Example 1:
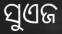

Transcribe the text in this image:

ସୁଏଜ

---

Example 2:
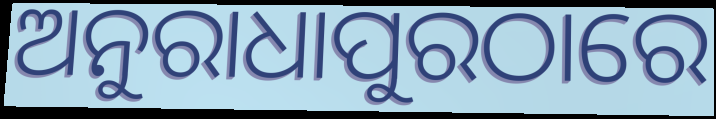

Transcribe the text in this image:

ଅନୁରାଧାପୁରଠାରେ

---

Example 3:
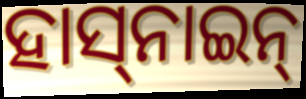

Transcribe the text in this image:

ହାସ୍‌ନାଇନ୍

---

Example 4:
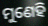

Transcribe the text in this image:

ମୁଣେହି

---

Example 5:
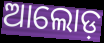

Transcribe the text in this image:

ଆଲୋଡ଼